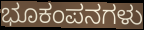
ಭೂಕಂಪನಗಳು